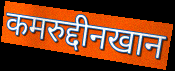
कमरुद्दीनखान